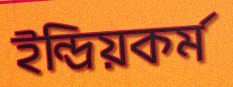
ইন্দ্রিয়কর্ম